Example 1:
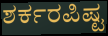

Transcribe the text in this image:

ಶರ್ಕರಪಿಷ್ಟ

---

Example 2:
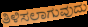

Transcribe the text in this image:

ತಿಳಿಸಲಾಗುವುದು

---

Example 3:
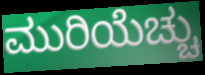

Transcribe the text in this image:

ಮುರಿಯೆಚ್ಚು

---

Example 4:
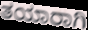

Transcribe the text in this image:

ತಯಾರಾಗಿ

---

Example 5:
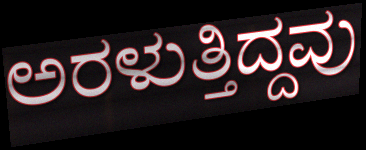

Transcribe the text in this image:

ಅರಳುತ್ತಿದ್ದವು